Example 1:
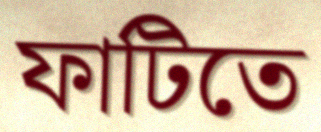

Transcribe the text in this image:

ফাটিতে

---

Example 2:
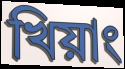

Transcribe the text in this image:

খিয়াং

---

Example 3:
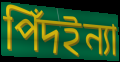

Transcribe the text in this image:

পিঁদইন্যা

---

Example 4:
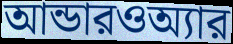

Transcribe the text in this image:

আন্ডারওঅ্যার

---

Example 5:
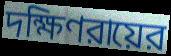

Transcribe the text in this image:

দক্ষিণরায়ের